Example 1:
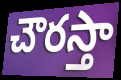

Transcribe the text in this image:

చౌరస్తా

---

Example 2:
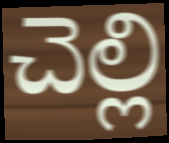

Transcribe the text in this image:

చెల్లి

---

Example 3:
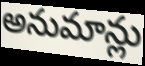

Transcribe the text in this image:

అనుమాన్లు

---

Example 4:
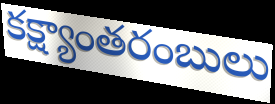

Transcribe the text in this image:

కక్ష్యాంతరంబులు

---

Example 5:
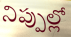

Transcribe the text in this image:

నిప్పుల్లో